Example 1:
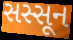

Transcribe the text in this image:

સસ્સૂન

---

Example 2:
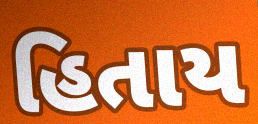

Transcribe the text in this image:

હિતાય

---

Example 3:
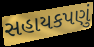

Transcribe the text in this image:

સહાયકપણું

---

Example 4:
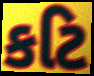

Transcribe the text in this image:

કટિ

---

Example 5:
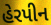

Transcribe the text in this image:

હેરપીન